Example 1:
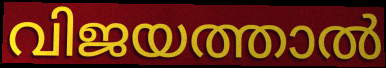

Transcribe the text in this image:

വിജയത്താൽ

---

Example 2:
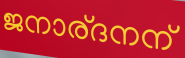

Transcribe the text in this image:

ജനാര്ദനന്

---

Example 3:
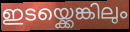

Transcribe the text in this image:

ഇടയ്ക്കെങ്കിലും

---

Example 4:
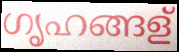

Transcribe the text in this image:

ഗൃഹങ്ങള്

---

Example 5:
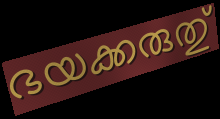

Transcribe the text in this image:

ഭയക്കരുതു്